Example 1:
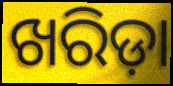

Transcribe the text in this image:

ଖରିଡ଼ା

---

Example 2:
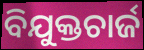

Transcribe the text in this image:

ବିଯୁକ୍ତଚାର୍ଜ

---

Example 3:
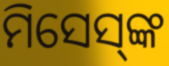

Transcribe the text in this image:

ମିସେସ୍‍ଙ୍କ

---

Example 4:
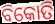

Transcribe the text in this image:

ବିକୋତି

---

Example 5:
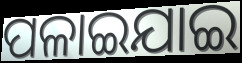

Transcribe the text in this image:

ପଳାଇଯାଇ